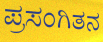
ಪ್ರಸಂಗಿತನ